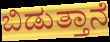
ಬಿಡುತ್ತಾನೆ